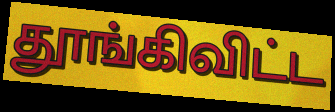
தூங்கிவிட்ட